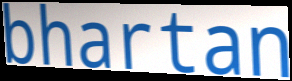
bhartan